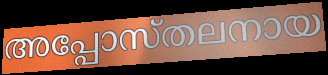
അപ്പോസ്തലനായ